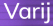
Varij